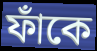
ফাঁকে